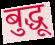
बुद्धू